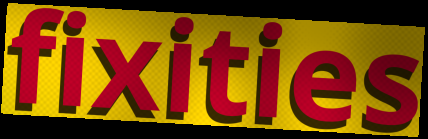
fixities